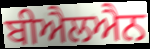
ਬੀਐਲਐਨ